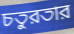
চতুরতার